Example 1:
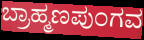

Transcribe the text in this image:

ಬ್ರಾಹ್ಮಣಪುಂಗವ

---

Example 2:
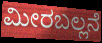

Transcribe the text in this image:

ಮೀರಬಲ್ಲನೆ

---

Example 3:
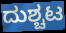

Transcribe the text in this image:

ದುಶ್ಚಟ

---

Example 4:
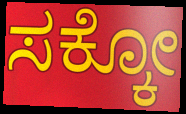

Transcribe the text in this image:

ಸಕ್ಕೋ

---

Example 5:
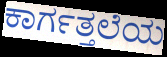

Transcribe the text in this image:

ಕಾರ್ಗತ್ತಲೆಯ